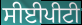
ਸੀਈਪੀਟੀ